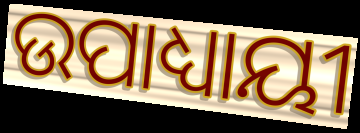
ଉପାଧ୍ୟାୟୀ